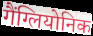
गैंग्लियोनिक